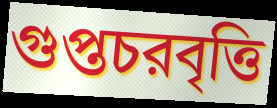
গুপ্তচরবৃত্তি